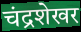
चंद्रशेखर